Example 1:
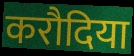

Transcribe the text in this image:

करौदिया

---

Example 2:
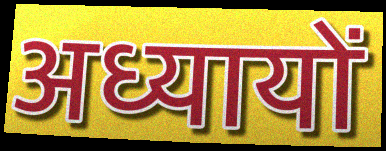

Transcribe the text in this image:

अध्यायों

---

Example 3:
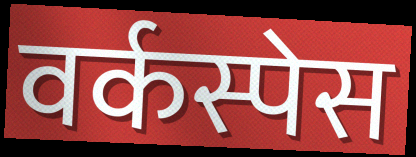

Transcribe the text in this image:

वर्कस्पेस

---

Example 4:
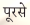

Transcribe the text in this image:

पूरसे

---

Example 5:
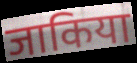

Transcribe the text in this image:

जाकिया